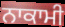
ਨਾਕਾਮੀ